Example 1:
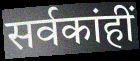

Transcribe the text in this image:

सर्वकांहीं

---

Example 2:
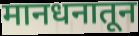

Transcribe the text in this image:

मानधनातून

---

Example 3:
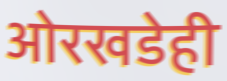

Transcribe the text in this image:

ओरखडेही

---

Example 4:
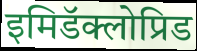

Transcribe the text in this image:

इमिडॅक्लोप्रिड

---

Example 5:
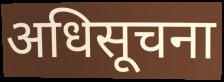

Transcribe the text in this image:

अधिसूचना